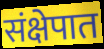
संक्षेपात